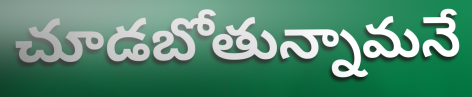
చూడబోతున్నామనే